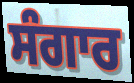
ਸੰਗਾਰ